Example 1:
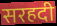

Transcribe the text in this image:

सरहदी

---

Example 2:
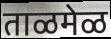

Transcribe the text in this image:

ताळमेळ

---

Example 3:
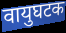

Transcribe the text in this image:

वायुघटक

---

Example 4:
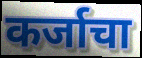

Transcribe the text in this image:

कर्जाचा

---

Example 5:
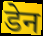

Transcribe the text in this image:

डेन